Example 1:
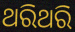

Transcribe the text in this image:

ଥରିଥରି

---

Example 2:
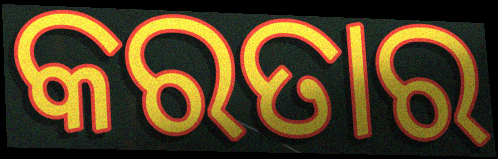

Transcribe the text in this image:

କରତାର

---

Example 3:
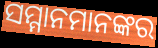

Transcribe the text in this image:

ସମ୍ମାନମାନଙ୍କର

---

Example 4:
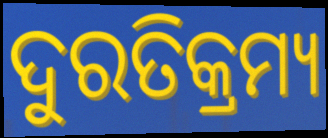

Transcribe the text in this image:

ଦୁରତିକ୍ରମ୍ୟ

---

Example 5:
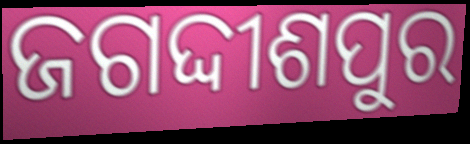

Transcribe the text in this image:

ଜଗଦ୍ଦୀଶପୁର